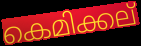
കെമിക്കല്